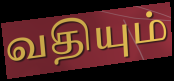
வதியும்